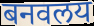
बनवलय